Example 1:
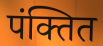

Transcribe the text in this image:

पंक्तित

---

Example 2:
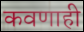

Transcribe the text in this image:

कवणाही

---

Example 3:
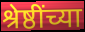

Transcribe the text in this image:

श्रेष्ठींच्या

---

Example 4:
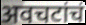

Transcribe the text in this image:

अवचटांचं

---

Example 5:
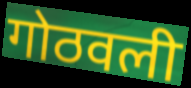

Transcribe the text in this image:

गोठवली